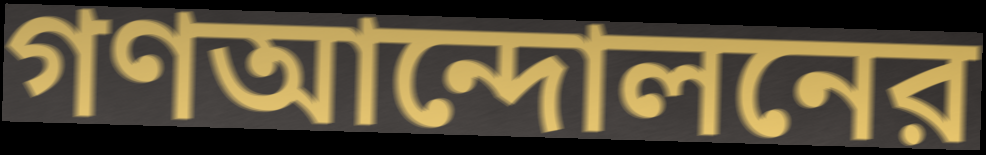
গণআন্দোলনের